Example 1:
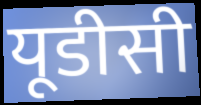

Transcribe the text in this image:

यूडीसी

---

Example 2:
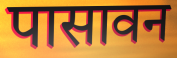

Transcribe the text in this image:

पासावन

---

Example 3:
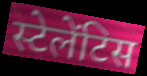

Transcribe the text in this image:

स्टेलेंटिस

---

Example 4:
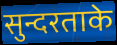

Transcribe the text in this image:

सुन्दरताके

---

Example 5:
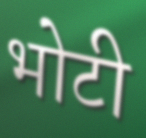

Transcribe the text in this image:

भोटी